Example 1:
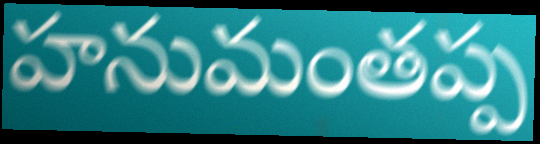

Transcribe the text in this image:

హనుమంతప్ప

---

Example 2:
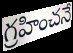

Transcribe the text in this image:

గ్రహించనే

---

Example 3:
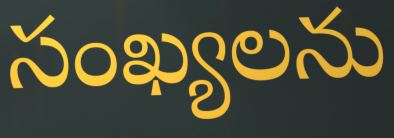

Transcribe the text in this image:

సంఖ్యలను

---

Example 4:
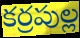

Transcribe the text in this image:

కర్రపుల్ల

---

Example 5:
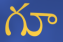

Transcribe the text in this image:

గూ